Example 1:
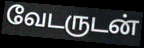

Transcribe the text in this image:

வேடருடன்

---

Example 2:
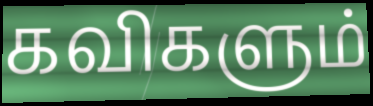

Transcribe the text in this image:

கவிகளும்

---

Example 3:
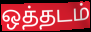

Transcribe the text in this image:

ஒத்தடம்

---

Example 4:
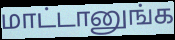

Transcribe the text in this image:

மாட்டானுங்க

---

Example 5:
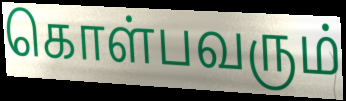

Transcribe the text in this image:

கொள்பவரும்